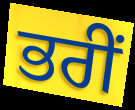
ਭਰੀਂ